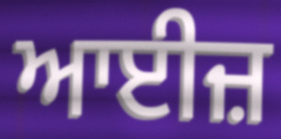
ਆਈਜ਼